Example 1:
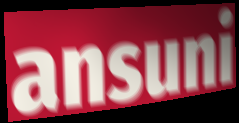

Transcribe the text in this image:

ansuni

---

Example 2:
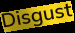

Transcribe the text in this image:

Disgust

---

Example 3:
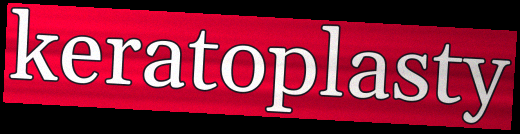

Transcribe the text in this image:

keratoplasty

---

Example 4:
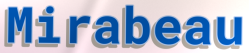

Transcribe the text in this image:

Mirabeau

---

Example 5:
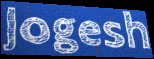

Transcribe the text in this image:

Jogesh